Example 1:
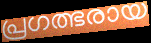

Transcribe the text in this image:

പ്രഗത്ഭരായ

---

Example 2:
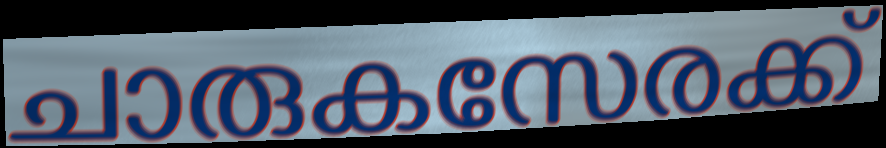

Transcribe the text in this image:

ചാരുകസേരക്ക്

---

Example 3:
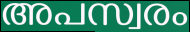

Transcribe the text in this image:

അപസ്വരം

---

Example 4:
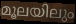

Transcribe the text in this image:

മൂലയിലും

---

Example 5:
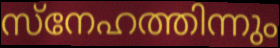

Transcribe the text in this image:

സ്നേഹത്തിന്നും